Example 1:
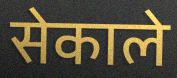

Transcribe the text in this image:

सेकाले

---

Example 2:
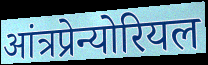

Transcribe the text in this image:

आंत्रप्रेन्योरियल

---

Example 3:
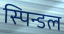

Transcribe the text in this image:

स्पिन्डल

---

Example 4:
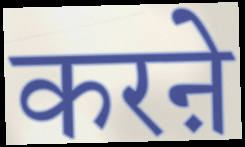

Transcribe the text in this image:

करऩे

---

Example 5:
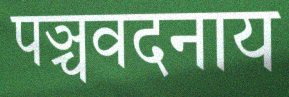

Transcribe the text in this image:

पञ्चवदनाय